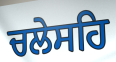
ਚਲੇਸਹਿ